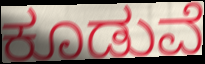
ಕೂಡುವೆ